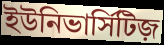
ইউনিভার্সিটিজ়